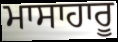
ਮਾਸਾਹਾਰੂ